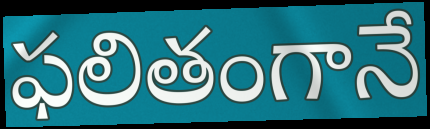
ఫలితంగానే